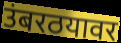
उंबरठयावर